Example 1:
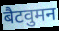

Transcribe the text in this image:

बैटवुमन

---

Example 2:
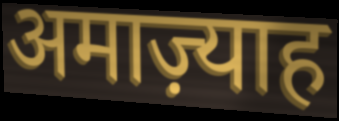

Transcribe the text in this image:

अमाज़्याह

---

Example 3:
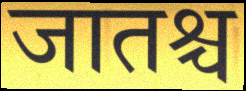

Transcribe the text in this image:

जातश्च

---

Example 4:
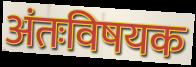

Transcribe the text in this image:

अंतःविषयक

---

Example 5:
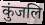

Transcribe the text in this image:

कुंजलि